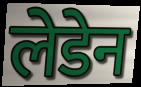
लेडेन